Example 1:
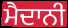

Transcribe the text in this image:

ਮੈਦਾਨੀ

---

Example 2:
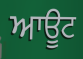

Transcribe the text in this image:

ਆਊਟ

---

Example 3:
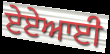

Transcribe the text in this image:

ਏਏਆਈ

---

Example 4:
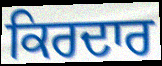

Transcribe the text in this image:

ਕਿਰਦਾਰ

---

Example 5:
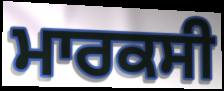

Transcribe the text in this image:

ਮਾਰਕਸੀ